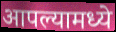
आपल्यामध्ये